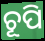
ଚୂପି